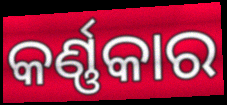
କର୍ଣ୍ଣକାର